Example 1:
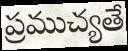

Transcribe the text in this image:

ప్రముచ్యతే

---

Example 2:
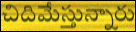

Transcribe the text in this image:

చిదిమేస్తున్నారు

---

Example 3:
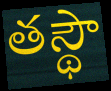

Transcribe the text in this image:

తస్థౌ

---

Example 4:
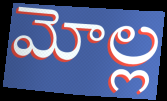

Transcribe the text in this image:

మోల్ల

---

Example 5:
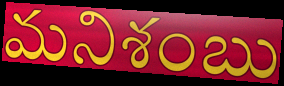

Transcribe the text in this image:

మనిశంబు